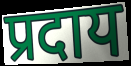
प्रदाय